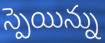
స్పెయిన్ను